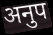
अनुप